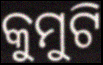
କୁମୁଟି